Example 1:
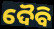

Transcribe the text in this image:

ଦୈବି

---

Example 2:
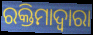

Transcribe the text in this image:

ରକ୍ତିମାଦ୍ୱାରା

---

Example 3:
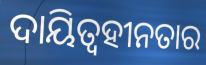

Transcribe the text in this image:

ଦାୟିତ୍ଵହୀନତାର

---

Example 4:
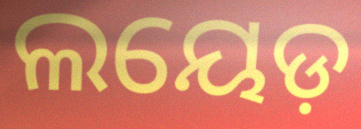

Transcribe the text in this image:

ଲୟେଡ଼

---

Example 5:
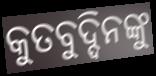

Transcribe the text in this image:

କୁତବୁଦ୍ଦିନଙ୍କୁ